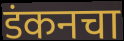
डंकनचा